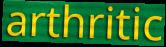
arthritic